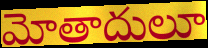
మోతాదులూ